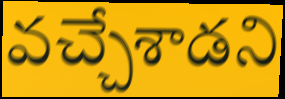
వచ్చేశాడని